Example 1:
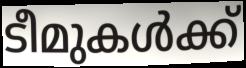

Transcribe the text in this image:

ടീമുകൾക്ക്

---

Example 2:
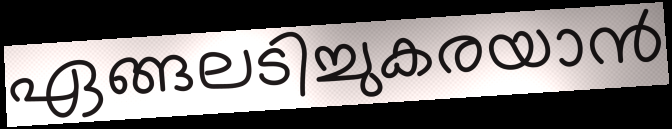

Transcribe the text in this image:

ഏങ്ങലടിച്ചുകരയാൻ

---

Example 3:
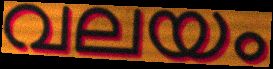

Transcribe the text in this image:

വലയം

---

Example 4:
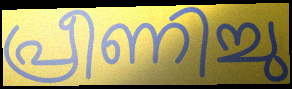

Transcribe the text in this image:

പ്രീണിച്ചു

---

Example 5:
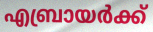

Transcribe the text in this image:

എബ്രായർക്ക്